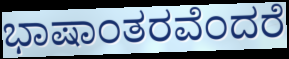
ಭಾಷಾಂತರವೆಂದರೆ